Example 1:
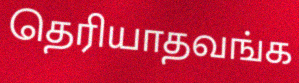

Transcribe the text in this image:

தெரியாதவங்க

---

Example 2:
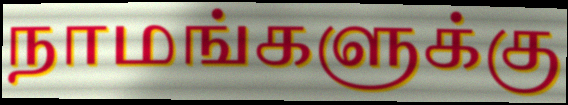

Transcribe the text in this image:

நாமங்களுக்கு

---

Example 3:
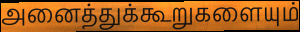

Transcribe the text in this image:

அனைத்துக்கூறுகளையும்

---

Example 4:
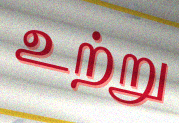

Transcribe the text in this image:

உற்று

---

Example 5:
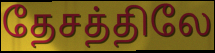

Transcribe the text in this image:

தேசத்திலே